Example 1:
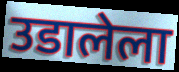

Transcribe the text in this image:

उडालेला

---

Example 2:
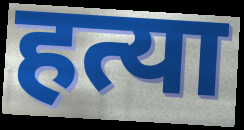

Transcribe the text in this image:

हत्या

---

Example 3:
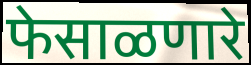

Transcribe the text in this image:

फेसाळणारे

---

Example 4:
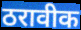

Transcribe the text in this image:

ठरावीक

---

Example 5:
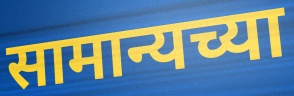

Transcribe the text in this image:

सामान्यच्या